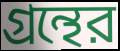
গ্রন্থের